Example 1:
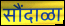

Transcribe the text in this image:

सौंदाळा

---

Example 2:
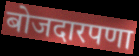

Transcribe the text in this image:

बोजदारपणा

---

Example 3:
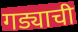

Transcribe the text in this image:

गड्याची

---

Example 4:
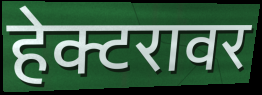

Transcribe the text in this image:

हेक्टरावर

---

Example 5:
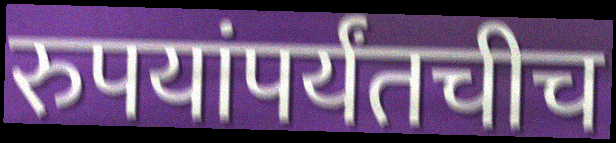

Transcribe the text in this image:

रुपयांपर्यंतचीच